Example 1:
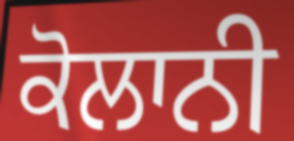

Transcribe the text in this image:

ਕੋਲਾਨੀ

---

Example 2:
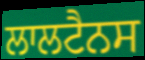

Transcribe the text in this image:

ਲਾਲਟੈਨਸ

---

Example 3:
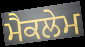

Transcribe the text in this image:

ਮੈਕਲੇਮ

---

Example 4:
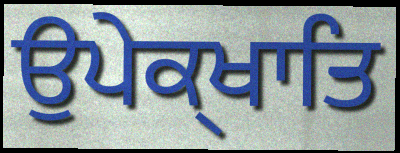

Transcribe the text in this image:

ਉਪੇਕ੍ਖਾਤਿ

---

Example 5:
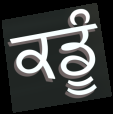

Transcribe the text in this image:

ਕਡੂੰ